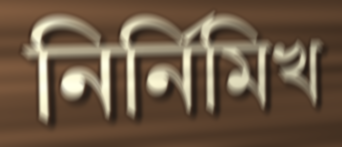
নির্নিমিখ